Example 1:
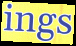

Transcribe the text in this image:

ings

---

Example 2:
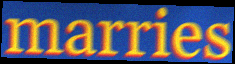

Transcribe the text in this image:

marries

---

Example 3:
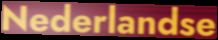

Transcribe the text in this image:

Nederlandse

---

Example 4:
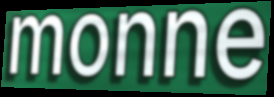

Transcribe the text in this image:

monne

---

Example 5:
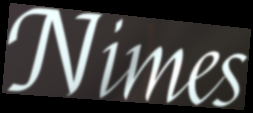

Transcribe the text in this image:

Nimes